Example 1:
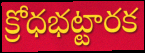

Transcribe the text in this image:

క్రోధభట్టారక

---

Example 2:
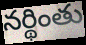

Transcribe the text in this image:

నర్థింతు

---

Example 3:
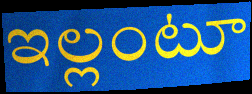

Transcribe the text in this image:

ఇల్లంటూ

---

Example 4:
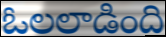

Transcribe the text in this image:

ఓలలాడింది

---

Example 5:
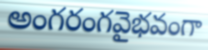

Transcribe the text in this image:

అంగరంగవైభవంగా